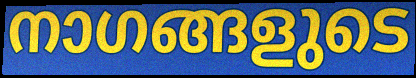
നാഗങ്ങളുടെ